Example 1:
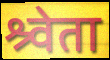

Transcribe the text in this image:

श्र्वेता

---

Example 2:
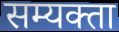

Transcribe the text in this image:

सम्यक्ता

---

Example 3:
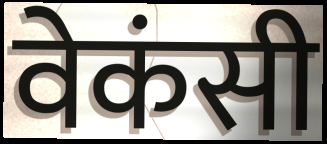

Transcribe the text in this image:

वेकंसी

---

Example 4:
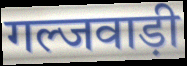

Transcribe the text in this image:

गल्जवाड़ी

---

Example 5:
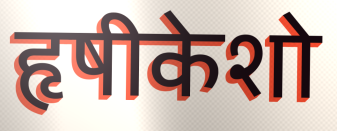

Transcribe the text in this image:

हृषीकेशो